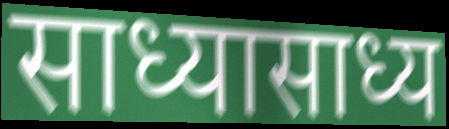
साध्यासाध्य